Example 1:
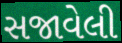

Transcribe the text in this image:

સજાવેલી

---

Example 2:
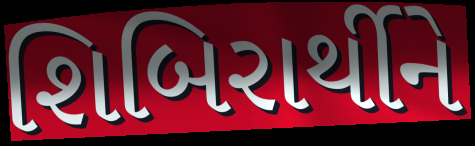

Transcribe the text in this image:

શિબિરાર્થીને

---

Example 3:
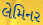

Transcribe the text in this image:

લેમિનર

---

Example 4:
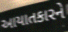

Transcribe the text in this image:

આયાતકારને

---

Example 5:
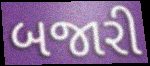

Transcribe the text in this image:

બજારી